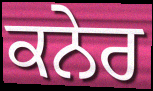
ਕਨੇਰ